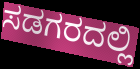
ಸಡಗರದಲ್ಲಿ